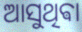
ଆସୁଥିଵା